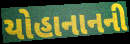
યોહાનાનની